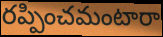
రప్పించమంటారా